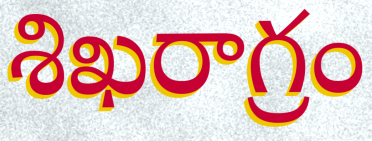
శిఖరాగ్రం